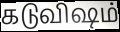
கடுவிஷம்